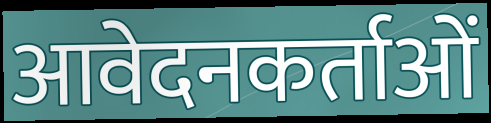
आवेदनकर्ताओं